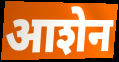
आशेन